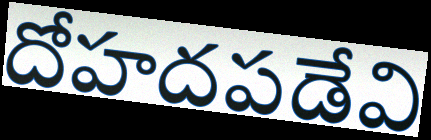
దోహదపడేవి